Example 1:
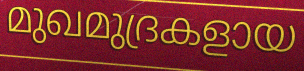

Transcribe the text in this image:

മുഖമുദ്രകളായ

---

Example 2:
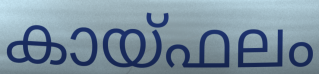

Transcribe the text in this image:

കായ്ഫലം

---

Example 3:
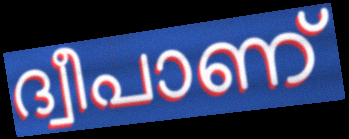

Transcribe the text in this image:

ദ്വീപാണ്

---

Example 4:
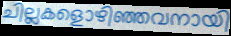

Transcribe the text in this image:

ചില്ലകളൊഴിഞ്ഞവനായി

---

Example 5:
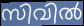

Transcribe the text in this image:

സിവിൽ